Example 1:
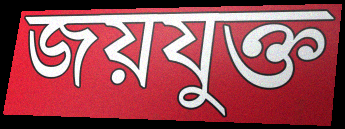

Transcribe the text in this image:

জয়যুক্ত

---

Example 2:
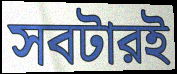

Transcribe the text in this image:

সবটারই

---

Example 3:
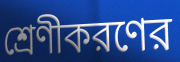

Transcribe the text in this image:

শ্রেণীকরণের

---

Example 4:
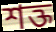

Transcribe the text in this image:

শক্ত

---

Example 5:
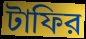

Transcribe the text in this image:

টাফির